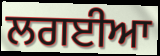
ਲਗਈਆ